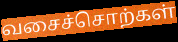
வசைச்சொற்கள்